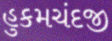
હુકમચંદજી